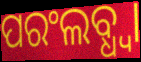
ପରଂଲବ୍ଧ୍ଵା